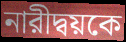
নারীদ্বয়কে